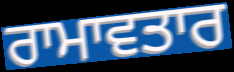
ਰਾਮਾਵਤਾਰ